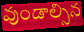
వుండాల్సిన